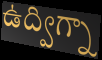
ఉద్విగ్నా